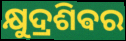
କ୍ଷୁଦ୍ରଶିଵର